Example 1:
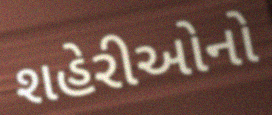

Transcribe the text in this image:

શહેરીઓનો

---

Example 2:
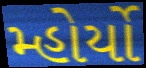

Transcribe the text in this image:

મ્હોર્યો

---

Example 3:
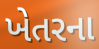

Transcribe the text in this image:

ખેતરના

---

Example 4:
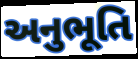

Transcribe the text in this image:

અનુભૂતિ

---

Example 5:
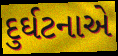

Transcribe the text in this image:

દુર્ઘટનાએ